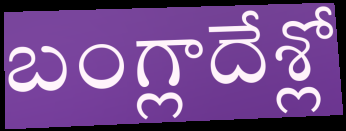
బంగ్లాదేశ్లో